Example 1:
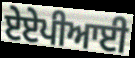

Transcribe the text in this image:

ਏਏਪੀਆਈ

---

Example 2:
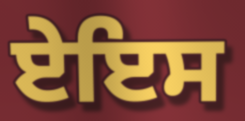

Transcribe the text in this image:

ਏਇਸ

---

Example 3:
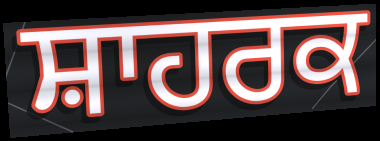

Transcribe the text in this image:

ਸ਼ਾਹਰਕ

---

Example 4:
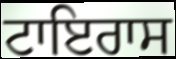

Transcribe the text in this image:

ਟਾਇਰਾਸ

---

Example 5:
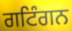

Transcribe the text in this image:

ਗਟਿੰਗਨ